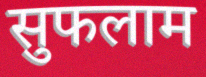
सुफलाम